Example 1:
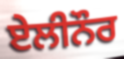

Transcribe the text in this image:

ਏਲੀਨੌਰ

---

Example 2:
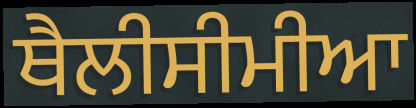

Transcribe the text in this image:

ਥੈਲੀਸੀਮੀਆ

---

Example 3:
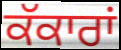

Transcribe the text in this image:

ਕੱਕਾਰਾਂ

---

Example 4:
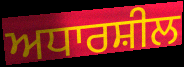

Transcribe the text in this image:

ਅਧਾਰਸ਼ੀਲ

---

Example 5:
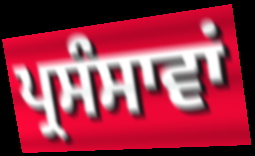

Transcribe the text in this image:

ਪ੍ਰਸੰਸਾਵਾਂ